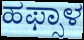
ಹಫ್ಸಾಳ